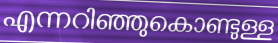
എന്നറിഞ്ഞുകൊണ്ടുള്ള